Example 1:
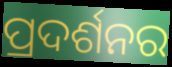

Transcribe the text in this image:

ପ୍ରଦର୍ଶନର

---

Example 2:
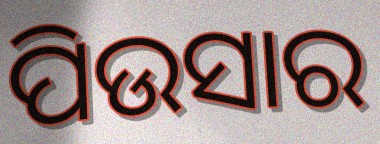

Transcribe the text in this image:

ପିଉସାର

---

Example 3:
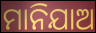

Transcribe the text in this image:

ମାନିଯାଅ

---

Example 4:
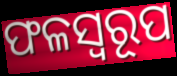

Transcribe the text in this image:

ଫଳସ୍ୱରୂପ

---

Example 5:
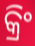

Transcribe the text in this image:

କ୍ରିଂ